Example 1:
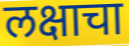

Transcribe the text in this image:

लक्षाचा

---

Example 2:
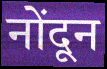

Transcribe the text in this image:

नोंदून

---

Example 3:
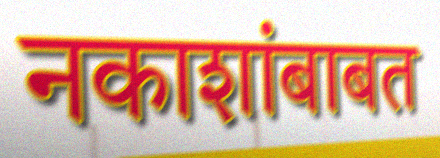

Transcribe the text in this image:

नकाशांबाबत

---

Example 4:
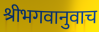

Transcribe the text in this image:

श्रीभगवानुवाच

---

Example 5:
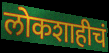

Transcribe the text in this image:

लोकशाहीचं